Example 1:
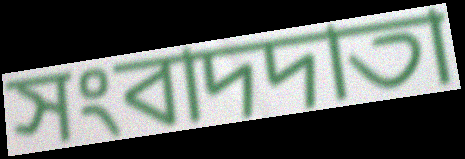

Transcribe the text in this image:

সংবাদদাতা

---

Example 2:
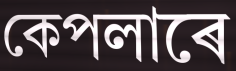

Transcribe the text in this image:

কেপলাৰে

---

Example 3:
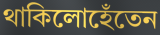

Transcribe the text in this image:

থাকিলোহেঁতেন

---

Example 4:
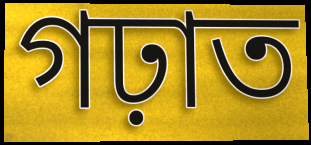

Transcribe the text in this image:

গঢ়াত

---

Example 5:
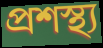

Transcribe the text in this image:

প্ৰশস্থ্য